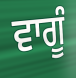
ਵਾਗੂੰ